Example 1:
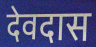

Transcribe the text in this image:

देवदास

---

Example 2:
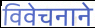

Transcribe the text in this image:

विवेचनाने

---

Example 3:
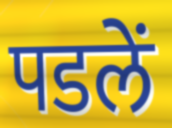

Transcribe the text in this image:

पडलें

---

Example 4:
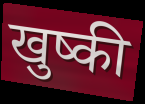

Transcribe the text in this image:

खुष्की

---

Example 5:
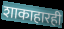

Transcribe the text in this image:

शाकाहारही